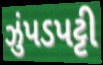
ઝુંપડપટ્ટી